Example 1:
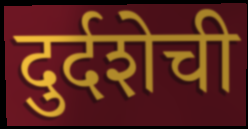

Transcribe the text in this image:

दुर्दशेची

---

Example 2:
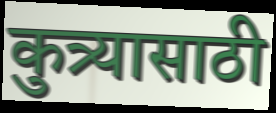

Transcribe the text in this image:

कुत्र्यासाठी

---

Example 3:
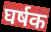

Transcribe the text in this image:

घर्षक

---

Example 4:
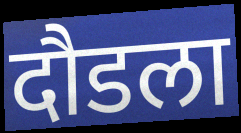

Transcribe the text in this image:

दौडला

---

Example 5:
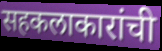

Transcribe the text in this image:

सहकलाकारांची